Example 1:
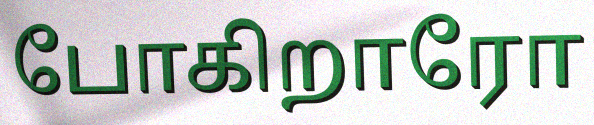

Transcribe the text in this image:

போகிறாரோ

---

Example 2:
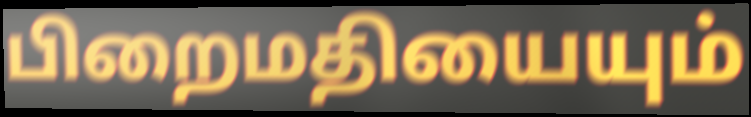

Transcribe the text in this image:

பிறைமதியையும்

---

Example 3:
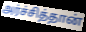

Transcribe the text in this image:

அர்ச்சித்தான்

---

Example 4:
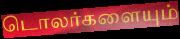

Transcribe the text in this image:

டொலர்களையும்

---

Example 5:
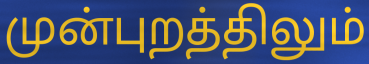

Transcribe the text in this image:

முன்புறத்திலும்